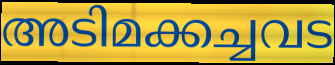
അടിമക്കച്ചവട